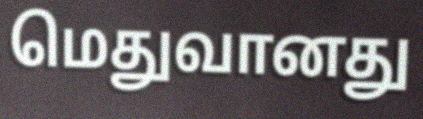
மெதுவானது